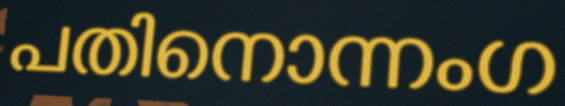
പതിനൊന്നംഗ